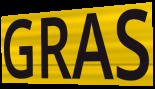
GRAS